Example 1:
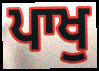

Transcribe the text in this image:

ਪਾਖੁ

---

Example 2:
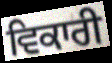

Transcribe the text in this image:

ਵਿਕਾਰੀ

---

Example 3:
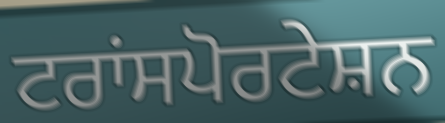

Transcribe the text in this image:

ਟਰਾਂਸਪੋਰਟੇਸ਼ਨ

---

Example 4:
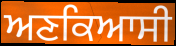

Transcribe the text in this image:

ਅਣਕਿਆਸੀ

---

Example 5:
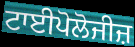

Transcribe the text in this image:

ਟਾਈਪੋਲੋਜੀਜ਼